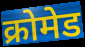
क्रोमेड